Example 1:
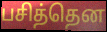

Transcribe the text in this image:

பசித்தென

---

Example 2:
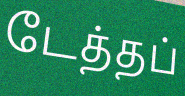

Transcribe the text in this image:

டேத்தப்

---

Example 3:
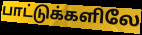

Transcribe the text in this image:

பாட்டுக்களிலே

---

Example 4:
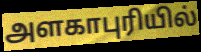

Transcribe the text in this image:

அளகாபுரியில்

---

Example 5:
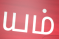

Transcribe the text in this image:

யம்